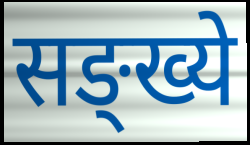
सङ्ख्ये